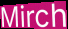
Mirch